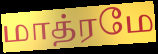
மாத்ரமே